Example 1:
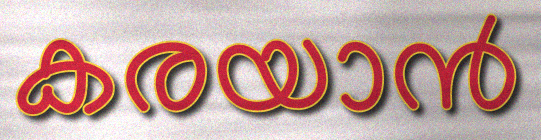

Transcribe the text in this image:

കരയാൻ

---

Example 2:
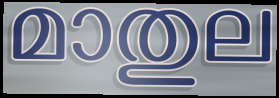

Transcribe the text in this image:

മാതുല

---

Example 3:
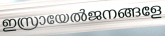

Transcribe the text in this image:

ഇസ്രായേൽജനങ്ങളേ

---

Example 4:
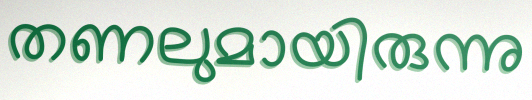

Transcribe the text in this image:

തണലുമായിരുന്നു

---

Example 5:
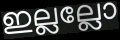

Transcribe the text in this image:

ഇല്ലല്ലോ